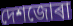
দেশজোৰা